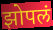
झोपलं